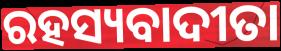
ରହସ୍ୟବାଦୀତା